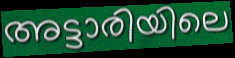
അട്ടാരിയിലെ